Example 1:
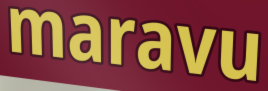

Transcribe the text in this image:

maravu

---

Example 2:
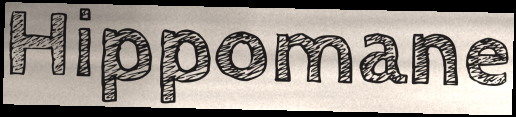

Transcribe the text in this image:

Hippomane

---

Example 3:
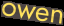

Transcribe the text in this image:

owen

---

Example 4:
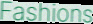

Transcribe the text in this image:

Fashions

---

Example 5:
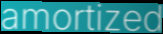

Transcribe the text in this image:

amortized